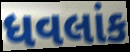
ધવલાંક